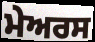
ਮੇਅਰਸ